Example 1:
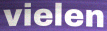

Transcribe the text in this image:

vielen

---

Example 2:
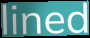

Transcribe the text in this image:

lined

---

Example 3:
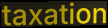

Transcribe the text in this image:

taxation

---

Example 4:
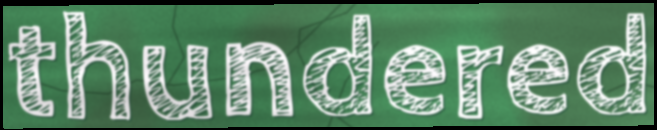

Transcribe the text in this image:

thundered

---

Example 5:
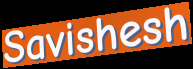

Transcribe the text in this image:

Savishesh